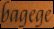
bagege